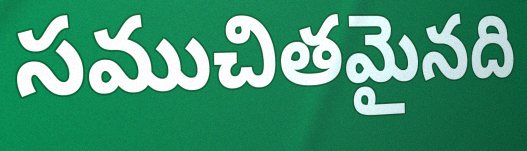
సముచితమైనది